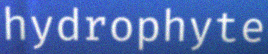
hydrophyte